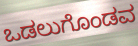
ಒಡಲುಗೊಂಡವ